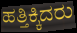
ಹತ್ತಿಕ್ಕಿದರು